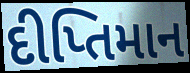
દીપ્તિમાન